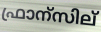
ഫ്രാന്സില്